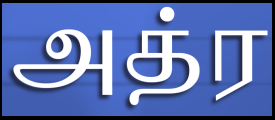
அத்ர